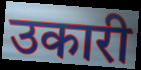
उकारी